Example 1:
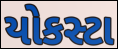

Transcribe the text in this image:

યોકસ્ટા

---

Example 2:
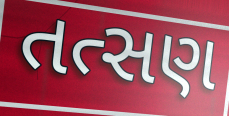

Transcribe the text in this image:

તત્સણ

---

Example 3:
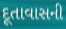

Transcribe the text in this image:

દૂતાવાસની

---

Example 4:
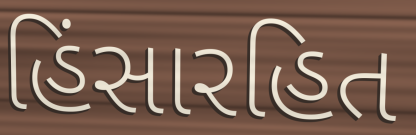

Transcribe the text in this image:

હિંસારહિત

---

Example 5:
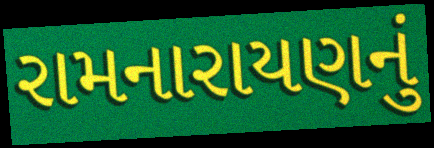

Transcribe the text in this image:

રામનારાયણનું